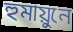
হুমায়ুনে